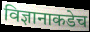
विज्ञानाकडेच